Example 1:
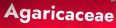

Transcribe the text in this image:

Agaricaceae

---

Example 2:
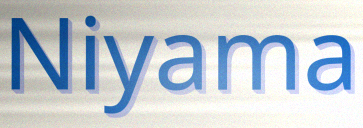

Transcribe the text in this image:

Niyama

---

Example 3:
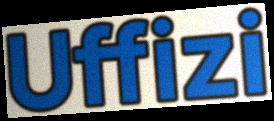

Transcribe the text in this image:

Uffizi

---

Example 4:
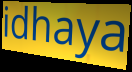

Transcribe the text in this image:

idhaya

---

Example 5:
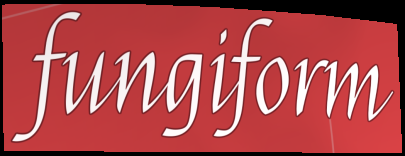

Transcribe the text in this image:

fungiform